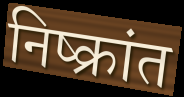
निष्क्रांत